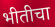
भीतीचा